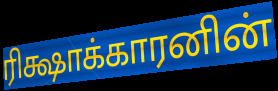
ரிக்ஷாக்காரனின்